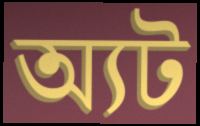
অ্যট